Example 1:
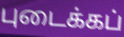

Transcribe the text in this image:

புடைக்கப்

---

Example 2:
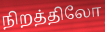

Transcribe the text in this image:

நிறத்திலோ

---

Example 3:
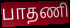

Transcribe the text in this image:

பாதணி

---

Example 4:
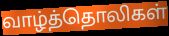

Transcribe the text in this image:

வாழ்த்தொலிகள்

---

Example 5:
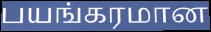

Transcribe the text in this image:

பயங்கரமான